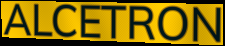
ALCETRON